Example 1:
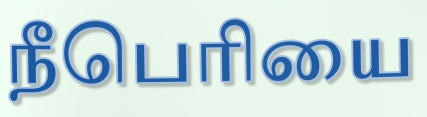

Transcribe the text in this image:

நீபெரியை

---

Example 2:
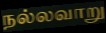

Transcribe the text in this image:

நல்லவாறு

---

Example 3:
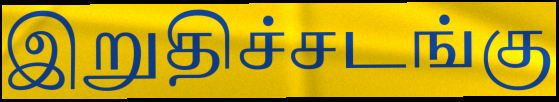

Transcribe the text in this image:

இறுதிச்சடங்கு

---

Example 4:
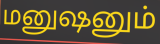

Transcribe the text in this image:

மனுஷனும்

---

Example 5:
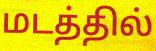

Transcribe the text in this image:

மடத்தில்